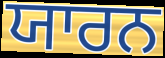
ਯਾਰਨ